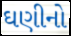
ઘણીનો